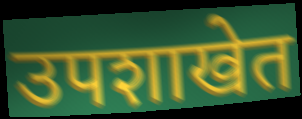
उपशाखेत